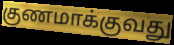
குணமாக்குவது